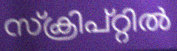
സ്ക്രിപ്റ്റിൽ